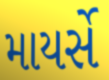
માયર્સે